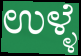
ಉಳ್ಳೆ